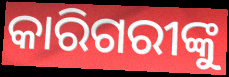
କାରିଗରୀଙ୍କୁ